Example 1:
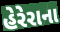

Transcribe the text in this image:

હેરેરાના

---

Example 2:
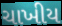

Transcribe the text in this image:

ચાખીય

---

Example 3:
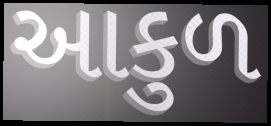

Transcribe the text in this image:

આકુળ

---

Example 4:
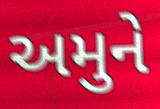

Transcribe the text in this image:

અમુને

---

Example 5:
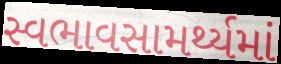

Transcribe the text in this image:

સ્વભાવસામર્થ્યમાં